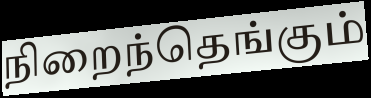
நிறைந்தெங்கும்